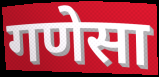
गणेसा